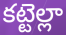
కట్టెల్లా